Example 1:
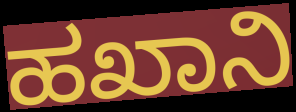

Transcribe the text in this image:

ಹಖಾನಿ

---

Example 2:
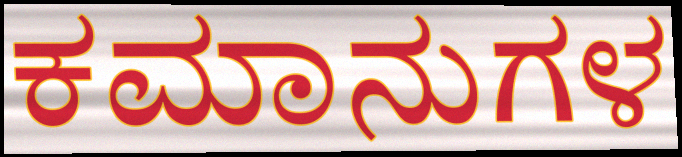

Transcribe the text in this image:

ಕಮಾನುಗಳ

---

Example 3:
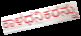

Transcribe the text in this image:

ಕಾಳಧನಿಕರನ್ನು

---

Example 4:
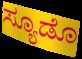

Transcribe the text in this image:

ಸ್ಯೂಡೊ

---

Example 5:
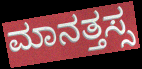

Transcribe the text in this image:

ಮಾನತ್ತಸ್ಸ